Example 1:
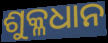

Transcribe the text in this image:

ଶୁକ୍ଳଧାନ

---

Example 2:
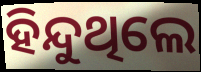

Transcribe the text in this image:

ହିନ୍ଦୁଥିଲେ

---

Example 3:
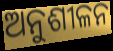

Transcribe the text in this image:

ଅନୁଶୀଳନ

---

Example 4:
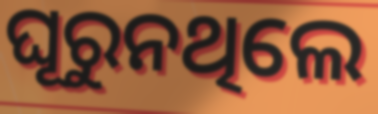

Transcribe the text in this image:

ଘୂରୁନଥିଲେ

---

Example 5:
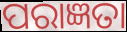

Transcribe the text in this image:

ପରାଜ୍ଞତା